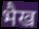
भैख